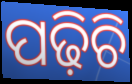
ପଢ଼ିଚି